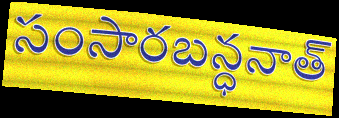
సంసారబన్ధనాత్